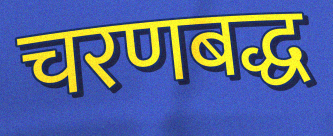
चरणबद्ध